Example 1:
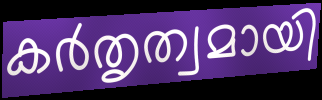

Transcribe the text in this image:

കർതൃത്വമായി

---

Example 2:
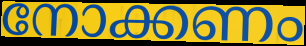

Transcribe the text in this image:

നോക്കണം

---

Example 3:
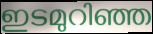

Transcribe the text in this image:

ഇടമുറിഞ്ഞ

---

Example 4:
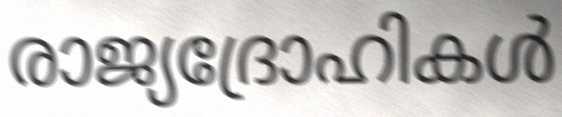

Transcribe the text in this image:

രാജ്യദ്രോഹികൾ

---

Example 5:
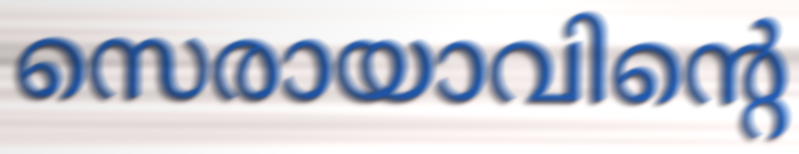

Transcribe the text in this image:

സെരായാവിന്റെ